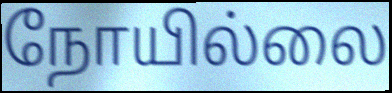
நோயில்லை